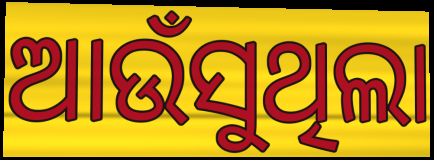
ଆଉଁସୁଥିଲା